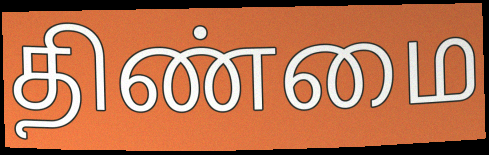
திண்மை